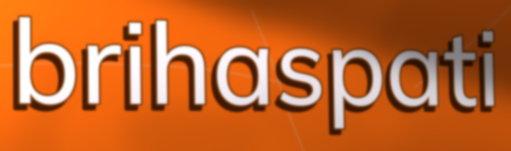
brihaspati